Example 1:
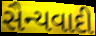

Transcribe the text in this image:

સૈન્યવાદી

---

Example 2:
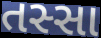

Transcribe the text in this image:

તસ્સા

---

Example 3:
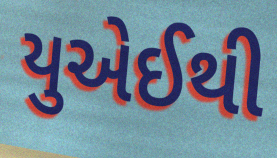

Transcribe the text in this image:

યુએઈથી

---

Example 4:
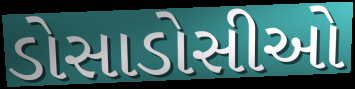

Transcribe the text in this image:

ડોસાડોસીઓ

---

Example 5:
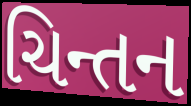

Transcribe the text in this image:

ચિન્તન